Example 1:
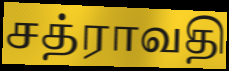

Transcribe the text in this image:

சத்ராவதி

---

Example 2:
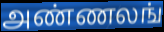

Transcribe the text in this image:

அண்ணலங்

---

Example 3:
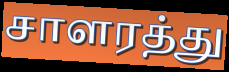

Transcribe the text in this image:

சாளரத்து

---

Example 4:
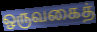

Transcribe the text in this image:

ஒருவகைத்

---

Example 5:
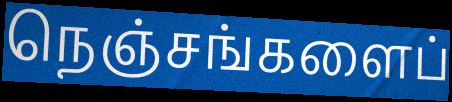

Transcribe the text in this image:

நெஞ்சங்களைப்